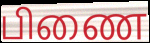
பிணை